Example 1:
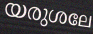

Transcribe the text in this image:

യരുശലേ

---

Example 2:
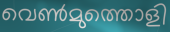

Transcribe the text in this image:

വെൺമുത്തൊളി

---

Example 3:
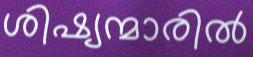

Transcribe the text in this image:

ശിഷ്യന്മാരിൽ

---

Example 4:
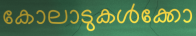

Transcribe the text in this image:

കോലാടുകൾക്കോ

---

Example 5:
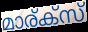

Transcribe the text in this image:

മാര്ക്സ്